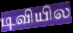
டிவியில